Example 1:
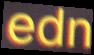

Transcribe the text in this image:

edn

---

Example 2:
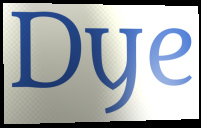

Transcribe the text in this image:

Dye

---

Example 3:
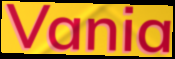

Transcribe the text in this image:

Vania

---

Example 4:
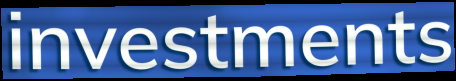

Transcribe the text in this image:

investments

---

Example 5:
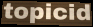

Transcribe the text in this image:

topicid